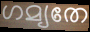
ഗമ്യതേ